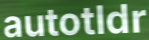
autotldr